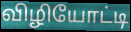
விழியோட்டி